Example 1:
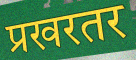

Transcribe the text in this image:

प्रखरतर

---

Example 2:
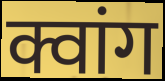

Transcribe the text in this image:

क्वांग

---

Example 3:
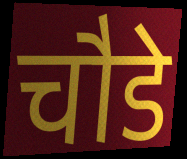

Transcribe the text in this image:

चौडे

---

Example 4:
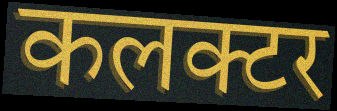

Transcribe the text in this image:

कलक्टर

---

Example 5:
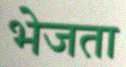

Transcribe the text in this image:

भेजता